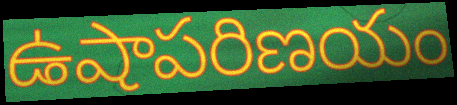
ఉషాపరిణయం